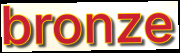
bronze